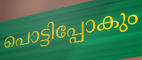
പൊട്ടിപ്പോകും